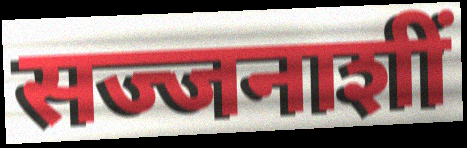
सज्जनाशीं